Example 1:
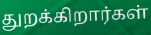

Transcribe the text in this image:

துறக்கிறார்கள்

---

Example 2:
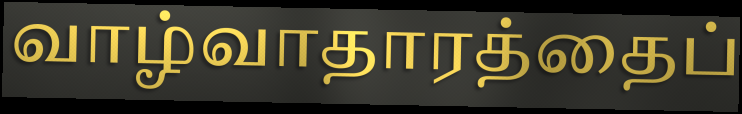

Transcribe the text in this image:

வாழ்வாதாரத்தைப்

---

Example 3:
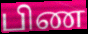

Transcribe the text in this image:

பிண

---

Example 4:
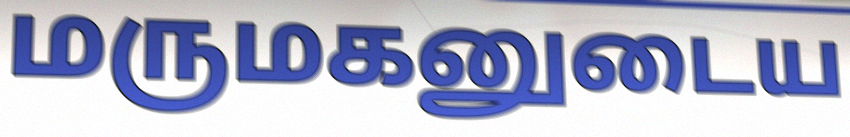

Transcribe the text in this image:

மருமகனுடைய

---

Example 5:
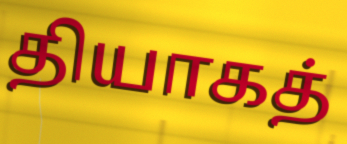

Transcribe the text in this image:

தியாகத்